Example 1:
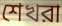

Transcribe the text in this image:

শেখরা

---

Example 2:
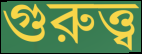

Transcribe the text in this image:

গুরুত্ত্ব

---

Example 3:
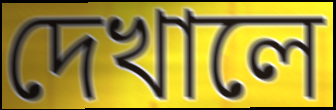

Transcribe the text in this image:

দেখালে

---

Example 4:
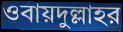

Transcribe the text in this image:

ওবায়দুল্লাহর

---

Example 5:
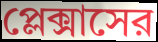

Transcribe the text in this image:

প্লেক্সাসের